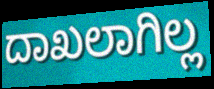
ದಾಖಲಾಗಿಲ್ಲ